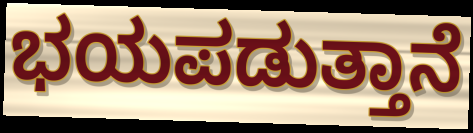
ಭಯಪಡುತ್ತಾನೆ